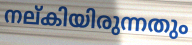
നല്കിയിരുന്നതും